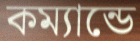
কম্যান্ডে